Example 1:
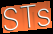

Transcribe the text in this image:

STs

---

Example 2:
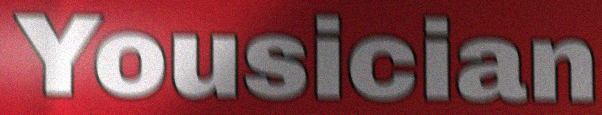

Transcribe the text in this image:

Yousician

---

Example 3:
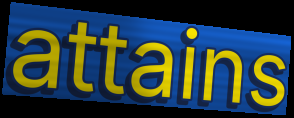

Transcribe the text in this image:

attains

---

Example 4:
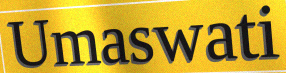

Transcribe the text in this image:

Umaswati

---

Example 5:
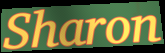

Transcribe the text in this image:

Sharon